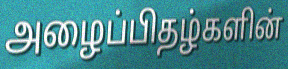
அழைப்பிதழ்களின்